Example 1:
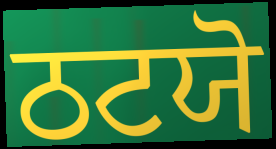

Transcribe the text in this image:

ਠਟਯੋ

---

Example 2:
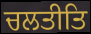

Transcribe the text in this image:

ਚਲਤੀਤਿ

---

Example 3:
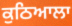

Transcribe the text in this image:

ਕੁਠਿਆਲਾ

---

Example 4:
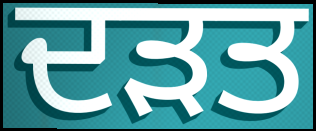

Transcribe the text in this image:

ਦੜਤ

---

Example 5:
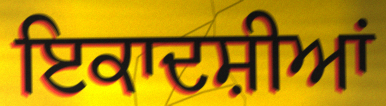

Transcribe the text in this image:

ਇਕਾਦਸ਼ੀਆਂ